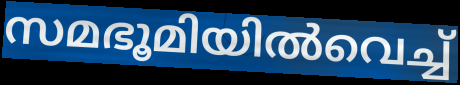
സമഭൂമിയിൽവെച്ച്